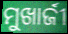
ମୁଖାର୍ଜୀ